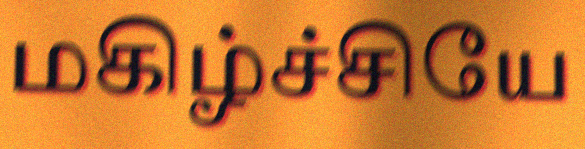
மகிழ்ச்சியே